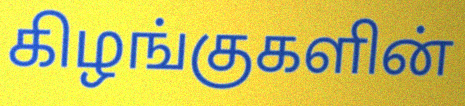
கிழங்குகளின்